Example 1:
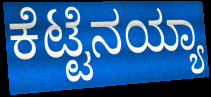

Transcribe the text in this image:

ಕೆಟ್ಟೆನಯ್ಯಾ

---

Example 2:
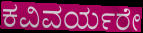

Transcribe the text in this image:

ಕವಿವರ್ಯರೇ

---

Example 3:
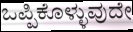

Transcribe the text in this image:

ಒಪ್ಪಿಕೊಳ್ಳುವುದೇ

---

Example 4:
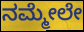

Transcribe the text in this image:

ನಮ್ಮೇಲೇ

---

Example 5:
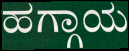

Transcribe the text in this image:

ಹಗ್ಗಾಯ